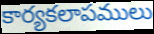
కార్యకలాపములు